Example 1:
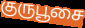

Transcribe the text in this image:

குருபூசை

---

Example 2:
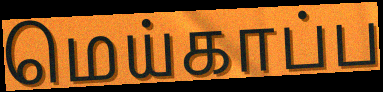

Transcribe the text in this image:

மெய்காப்ப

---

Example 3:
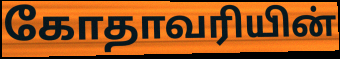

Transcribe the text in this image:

கோதாவரியின்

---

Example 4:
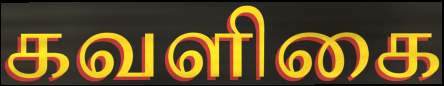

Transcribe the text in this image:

கவளிகை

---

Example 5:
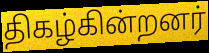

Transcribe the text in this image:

திகழ்கின்றனர்